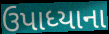
ઉપાધ્યાના